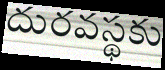
దురవస్థకు